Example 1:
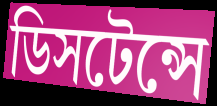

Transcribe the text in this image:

ডিসটেন্সে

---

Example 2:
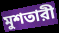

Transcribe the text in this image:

মুশতারী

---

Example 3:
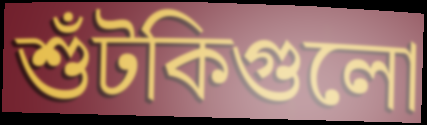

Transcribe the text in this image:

শুঁটকিগুলো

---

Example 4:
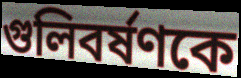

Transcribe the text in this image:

গুলিবর্ষণকে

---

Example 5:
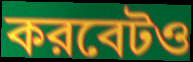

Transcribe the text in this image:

করবেটও